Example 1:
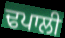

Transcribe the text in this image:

ਢਪਾਲੀ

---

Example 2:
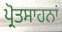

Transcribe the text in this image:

ਪ੍ਰੋਤਸਾਹਨਾਂ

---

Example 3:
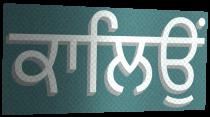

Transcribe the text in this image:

ਕਾਲਿਉਂ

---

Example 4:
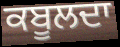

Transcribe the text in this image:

ਕਬੂਲਦਾ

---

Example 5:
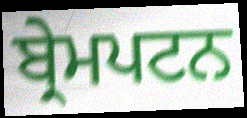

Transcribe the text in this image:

ਬ੍ਰੇਮਪਟਨ